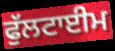
ਫੁੱਲਟਾਈਮ